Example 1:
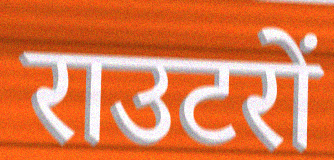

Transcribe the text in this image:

राउटरों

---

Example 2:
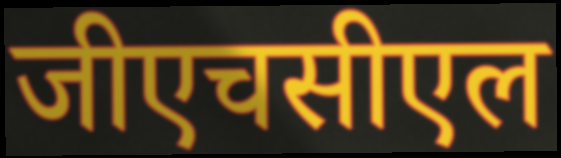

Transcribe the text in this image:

जीएचसीएल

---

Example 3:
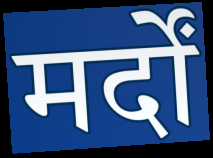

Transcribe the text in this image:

मर्दों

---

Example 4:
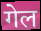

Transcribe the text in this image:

गेल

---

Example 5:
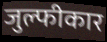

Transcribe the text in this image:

जुल्फीकार